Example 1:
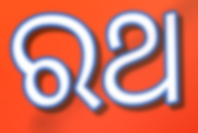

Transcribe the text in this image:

ରଥ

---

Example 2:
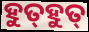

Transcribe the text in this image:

ହୁତ୍‌ହୁତ୍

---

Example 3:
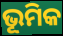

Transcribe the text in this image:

ଭୂମିକ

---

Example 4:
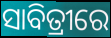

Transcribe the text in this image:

ସାବିତ୍ରୀରେ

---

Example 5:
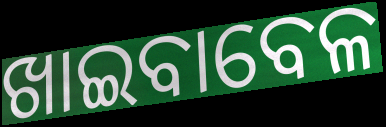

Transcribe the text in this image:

ଖାଇବାବେଳ